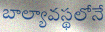
బాల్యావస్థలోనే